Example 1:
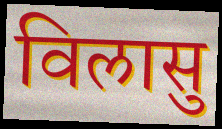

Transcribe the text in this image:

विलासु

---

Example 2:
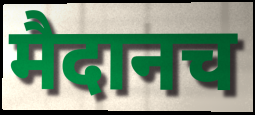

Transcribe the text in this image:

मैदानच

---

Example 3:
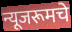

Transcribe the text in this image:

न्यूजरूमचे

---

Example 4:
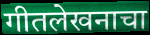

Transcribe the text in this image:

गीतलेखनाचा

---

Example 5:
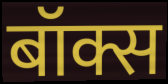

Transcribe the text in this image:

बॉक्स